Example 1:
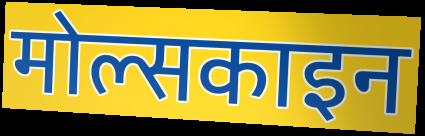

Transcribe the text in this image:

मोल्सकाइन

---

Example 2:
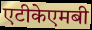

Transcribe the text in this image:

एटीकेएमबी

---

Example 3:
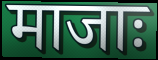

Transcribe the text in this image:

माजाः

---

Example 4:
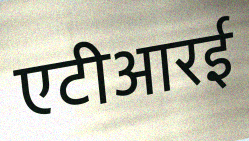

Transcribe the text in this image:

एटीआरई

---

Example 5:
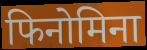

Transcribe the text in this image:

फिनोमिना